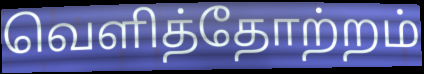
வெளித்தோற்றம்